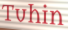
Tuhin